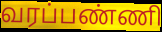
வரப்பண்ணி